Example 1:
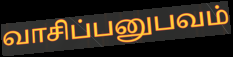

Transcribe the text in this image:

வாசிப்பனுபவம்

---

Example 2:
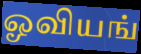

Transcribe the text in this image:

ஓவியங்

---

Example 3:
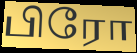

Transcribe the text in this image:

பிரோ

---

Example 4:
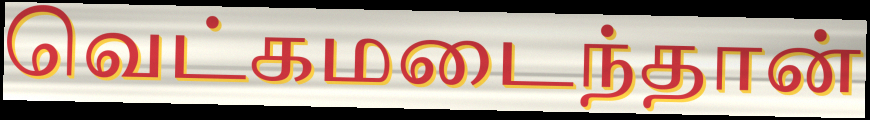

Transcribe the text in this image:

வெட்கமடைந்தான்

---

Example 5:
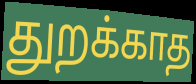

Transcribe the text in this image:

துறக்காத